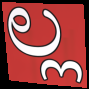
ಲ್ಲ